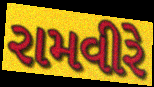
રામવીરે